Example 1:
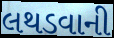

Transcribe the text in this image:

લથડવાની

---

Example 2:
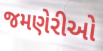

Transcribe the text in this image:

જમણેરીઓ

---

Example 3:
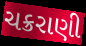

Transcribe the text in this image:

ચક્રરાણી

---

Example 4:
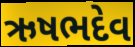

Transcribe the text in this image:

ઋષભદેવ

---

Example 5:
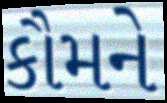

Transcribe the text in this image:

કૌમને